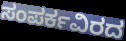
ಸಂಪರ್ಕವಿರದ